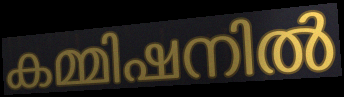
കമ്മിഷനിൽ